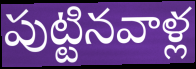
పుట్టినవాళ్ల